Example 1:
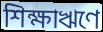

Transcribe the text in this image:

শিক্ষাঋণে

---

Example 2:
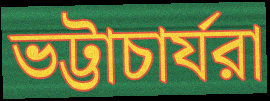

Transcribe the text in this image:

ভট্টাচার্যরা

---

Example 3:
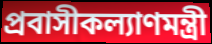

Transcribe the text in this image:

প্রবাসীকল্যাণমন্ত্রী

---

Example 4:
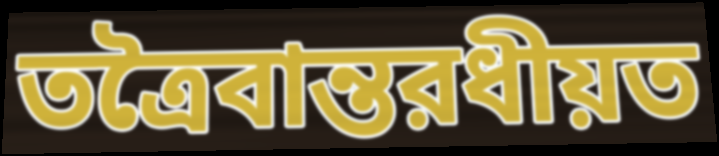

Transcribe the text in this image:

তত্রৈবান্তরধীয়ত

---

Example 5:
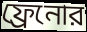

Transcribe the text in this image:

ফ্রেনোর